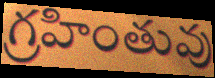
గ్రహింతువు